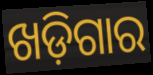
ଖଡ଼ିଗାର